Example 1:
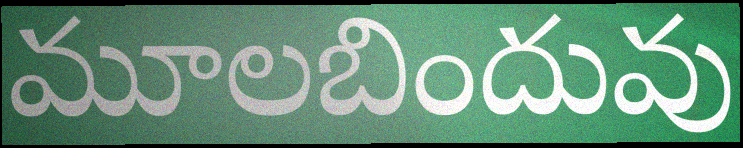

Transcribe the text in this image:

మూలబిందువు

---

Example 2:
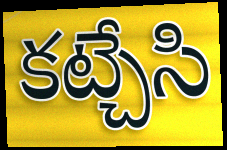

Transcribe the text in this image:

కట్చేసి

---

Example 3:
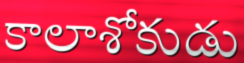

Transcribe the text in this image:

కాలాశోకుడు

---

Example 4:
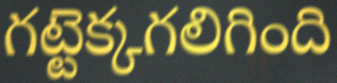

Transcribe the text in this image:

గట్టెక్కగలిగింది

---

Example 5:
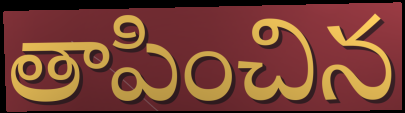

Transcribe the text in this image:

తాపించిన